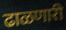
ढाळणारी